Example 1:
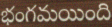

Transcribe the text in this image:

భంగమయింది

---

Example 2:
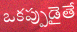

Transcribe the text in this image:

ఒకప్పుడైతే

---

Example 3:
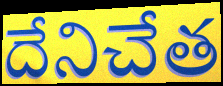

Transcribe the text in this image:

దేనిచేత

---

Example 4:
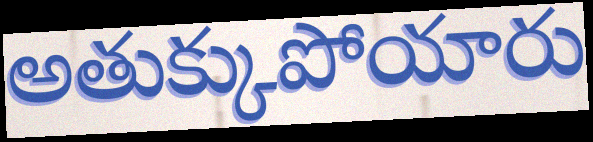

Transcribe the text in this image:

అతుక్కుపోయారు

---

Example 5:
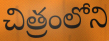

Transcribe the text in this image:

చిత్రంలోని